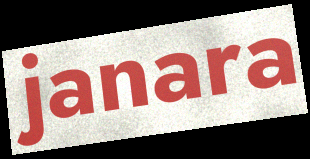
janara